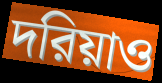
দরিয়াও